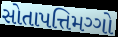
સોતાપત્તિમગ્ગો